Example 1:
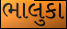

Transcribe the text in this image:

ભાલુકા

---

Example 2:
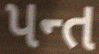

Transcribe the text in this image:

પન્ત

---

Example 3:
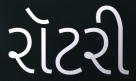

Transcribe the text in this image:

રૉટરી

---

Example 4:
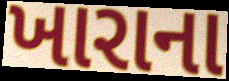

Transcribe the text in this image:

ખારાના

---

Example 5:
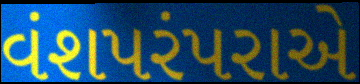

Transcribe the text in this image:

વંશપરંપરાએ